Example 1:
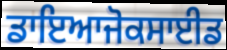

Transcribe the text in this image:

ਡਾਇਆਜੋਕਸਾਈਡ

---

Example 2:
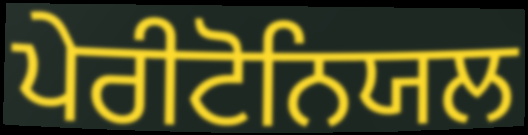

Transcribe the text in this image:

ਪੇਰੀਟੋਨਿਯਲ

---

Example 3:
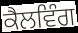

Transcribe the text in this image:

ਕੈਲਵਿੰਗ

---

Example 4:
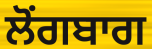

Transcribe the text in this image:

ਲੋਂਗਬਾਗ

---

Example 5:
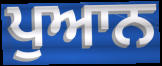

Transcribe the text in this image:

ਪੁਆਨ